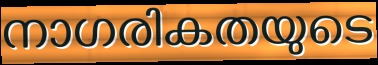
നാഗരികതയുടെ